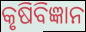
କୃଷିବିଜ୍ଞାନ